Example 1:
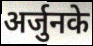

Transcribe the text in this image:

अर्जुनके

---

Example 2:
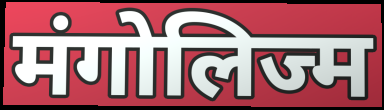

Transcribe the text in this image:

मंगोलिज्म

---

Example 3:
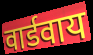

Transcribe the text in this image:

वार्डवाय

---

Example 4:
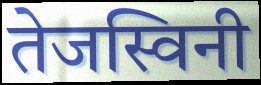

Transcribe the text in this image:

तेजस्विनी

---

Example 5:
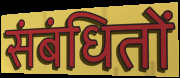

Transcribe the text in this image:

संबंधितों